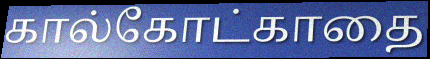
கால்கோட்காதை